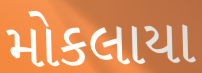
મોકલાયા